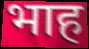
भाह